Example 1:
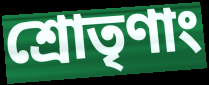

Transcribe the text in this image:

শ্রোতৃণাং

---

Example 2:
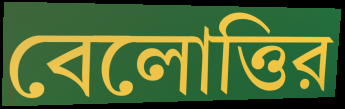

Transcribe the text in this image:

বেলোত্তির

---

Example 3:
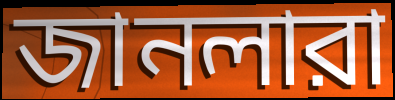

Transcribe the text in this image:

জানলারা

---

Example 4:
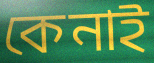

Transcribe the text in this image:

কেনাই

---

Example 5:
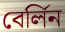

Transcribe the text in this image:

বের্লিন